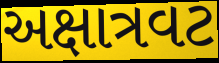
અક્ષાત્રવટ